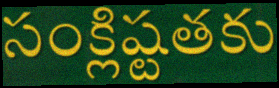
సంక్లిష్టతకు